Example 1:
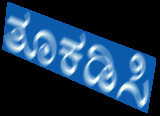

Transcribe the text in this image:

ತೂಕಡಿಸಿ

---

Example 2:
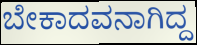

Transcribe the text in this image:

ಬೇಕಾದವನಾಗಿದ್ದ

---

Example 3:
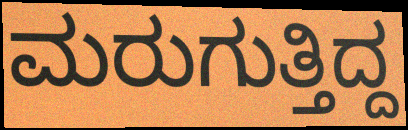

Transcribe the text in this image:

ಮರುಗುತ್ತಿದ್ದ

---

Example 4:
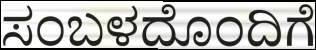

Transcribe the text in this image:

ಸಂಬಳದೊಂದಿಗೆ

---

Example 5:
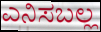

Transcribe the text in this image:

ಎನಿಸಬಲ್ಲ